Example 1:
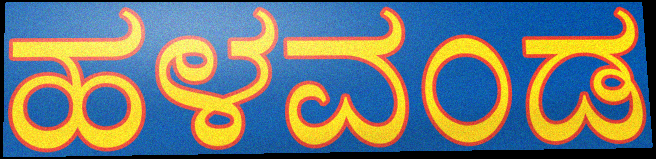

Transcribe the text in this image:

ಹಳವಂಡ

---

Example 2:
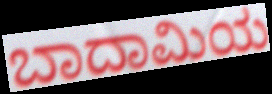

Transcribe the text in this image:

ಬಾದಾಮಿಯ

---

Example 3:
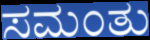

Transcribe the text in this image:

ಸಮಂತು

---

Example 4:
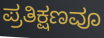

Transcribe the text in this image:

ಪ್ರತಿಕ್ಷಣವೂ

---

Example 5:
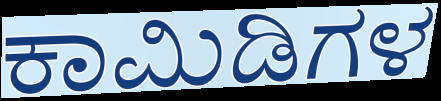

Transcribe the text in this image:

ಕಾಮಿಡಿಗಳ